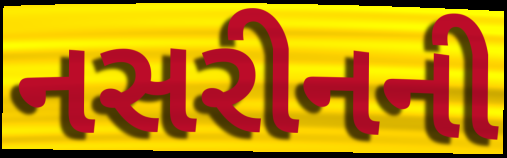
નસરીનની